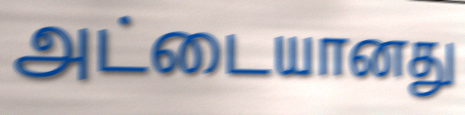
அட்டையானது